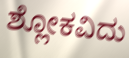
ಶ್ಲೋಕವಿದು